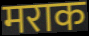
मराक